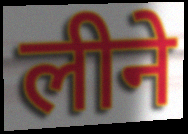
लीने